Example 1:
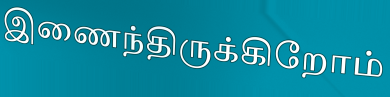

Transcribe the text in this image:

இணைந்திருக்கிறோம்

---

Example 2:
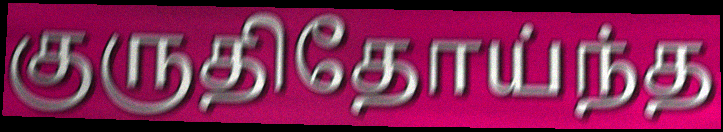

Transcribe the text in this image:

குருதிதோய்ந்த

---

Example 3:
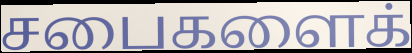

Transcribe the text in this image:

சபைகளைக்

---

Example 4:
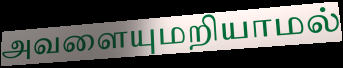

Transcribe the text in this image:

அவளையுமறியாமல்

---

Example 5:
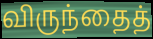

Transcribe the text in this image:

விருந்தைத்